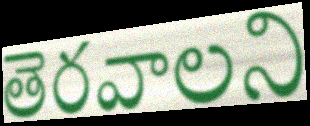
తెరవాలని